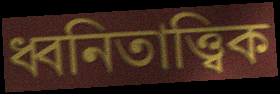
ধ্বনিতাত্ত্বিক